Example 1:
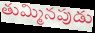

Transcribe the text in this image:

తుమ్మినపుడు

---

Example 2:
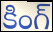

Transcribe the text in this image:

కింగ్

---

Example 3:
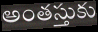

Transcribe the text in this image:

అంతస్తుకు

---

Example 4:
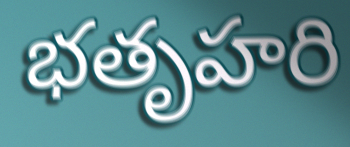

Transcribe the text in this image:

భతృహరి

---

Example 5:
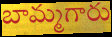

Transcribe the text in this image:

బామ్మగారు